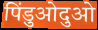
पिंडुओदुओ